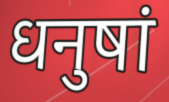
धनुषां